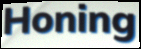
Honing